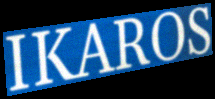
IKAROS